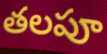
తలపూ